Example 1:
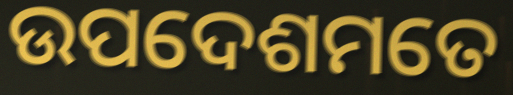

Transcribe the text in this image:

ଉପଦେଶମତେ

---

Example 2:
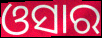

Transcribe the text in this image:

ଓସାର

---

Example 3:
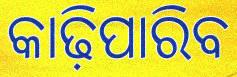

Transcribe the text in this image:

କାଢ଼ିପାରିବ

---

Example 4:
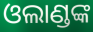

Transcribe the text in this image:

ଓଲାଣ୍ଡଙ୍କ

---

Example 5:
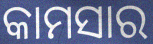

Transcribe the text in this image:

କାମସାର